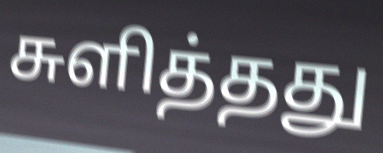
சுளித்தது